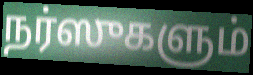
நர்ஸுகளும்